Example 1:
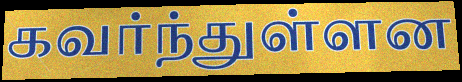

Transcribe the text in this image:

கவர்ந்துள்ளன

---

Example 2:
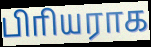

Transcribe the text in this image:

பிரியராக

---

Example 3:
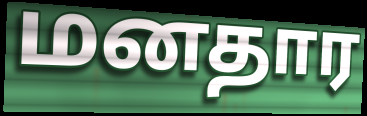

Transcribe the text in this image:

மனதார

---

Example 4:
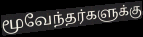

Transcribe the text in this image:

மூவேந்தர்களுக்கு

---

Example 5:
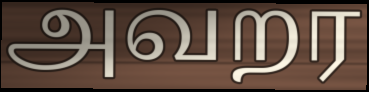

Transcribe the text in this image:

அவறர